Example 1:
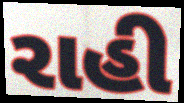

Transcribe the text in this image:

રાહી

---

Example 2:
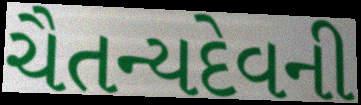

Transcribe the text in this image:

ચૈતન્યદેવની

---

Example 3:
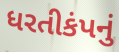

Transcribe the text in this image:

ધરતીકંપનું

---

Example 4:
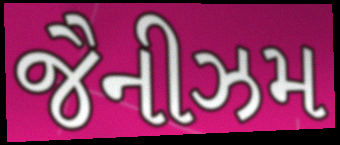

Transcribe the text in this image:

જૈનીઝમ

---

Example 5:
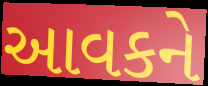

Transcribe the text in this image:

આવકને